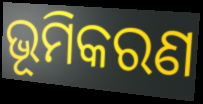
ଭୂମିକରଣ